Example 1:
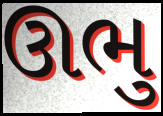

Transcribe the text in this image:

ઊભુ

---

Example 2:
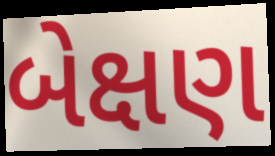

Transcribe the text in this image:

બેક્ષણ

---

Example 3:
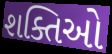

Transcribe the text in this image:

શક્તિઓ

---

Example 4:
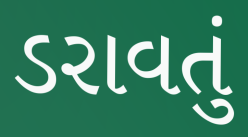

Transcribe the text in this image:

ડરાવતું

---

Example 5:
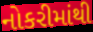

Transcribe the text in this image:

નોકરીમાંથી